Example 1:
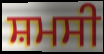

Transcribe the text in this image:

ਸ਼ਮਸੀ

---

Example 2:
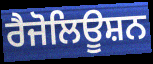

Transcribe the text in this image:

ਰੈਜੋਲਿਊਸ਼ਨ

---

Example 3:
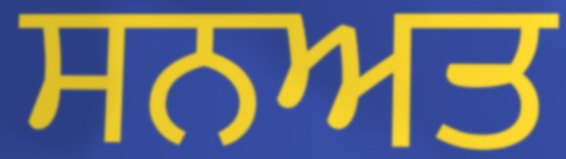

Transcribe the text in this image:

ਸਨਅਤ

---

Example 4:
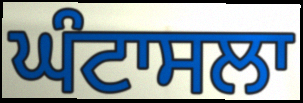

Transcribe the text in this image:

ਘੰਟਾਸਲਾ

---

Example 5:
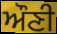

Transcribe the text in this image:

ਔਣੀ